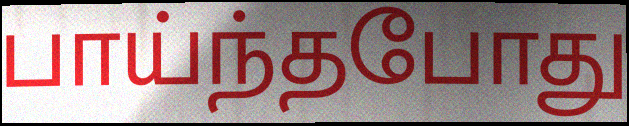
பாய்ந்தபோது